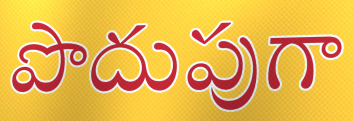
పొదుపుగా